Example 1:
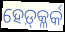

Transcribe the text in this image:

ହେଡ଼୍‍କ୍ଳର୍କ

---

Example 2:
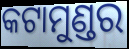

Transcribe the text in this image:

କଟାମୁଣ୍ଡର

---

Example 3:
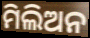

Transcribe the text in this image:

ମିଲିଅନ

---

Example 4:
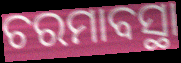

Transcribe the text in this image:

ଚରମାବସ୍ଥା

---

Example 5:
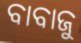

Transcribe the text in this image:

ବାବାଜୁ